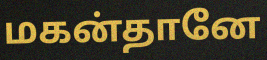
மகன்தானே